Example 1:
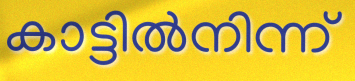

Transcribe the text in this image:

കാട്ടിൽനിന്ന്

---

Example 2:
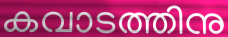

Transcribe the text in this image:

കവാടത്തിനു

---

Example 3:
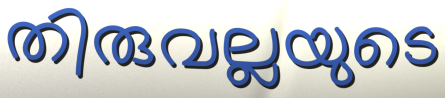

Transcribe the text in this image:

തിരുവല്ലയുടെ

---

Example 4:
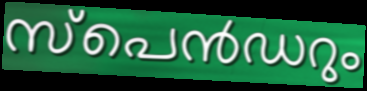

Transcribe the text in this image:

സ്പെൻഡറും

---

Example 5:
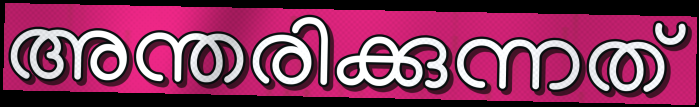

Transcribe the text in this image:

അന്തരിക്കുന്നത്